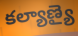
కల్యాణ్యై